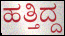
ಹತ್ತಿದ್ದ